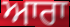
ਆਰਾ